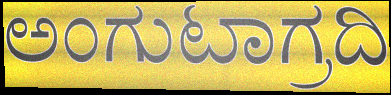
ಅಂಗುಟಾಗ್ರದಿ